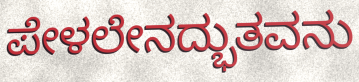
ಪೇಳಲೇನದ್ಭುತವನು